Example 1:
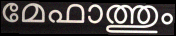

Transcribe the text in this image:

മേഫാത്തും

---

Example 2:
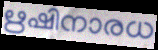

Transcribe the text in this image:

ഋഷിനാരധ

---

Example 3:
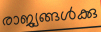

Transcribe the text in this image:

രാജ്യങ്ങൾക്കു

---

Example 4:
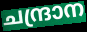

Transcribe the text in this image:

ചന്ദ്രാന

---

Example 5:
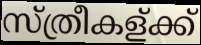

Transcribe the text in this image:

സ്ത്രീകള്ക്ക്